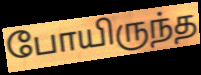
போயிருந்த